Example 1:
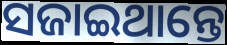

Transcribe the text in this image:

ସଜାଇଥାନ୍ତେ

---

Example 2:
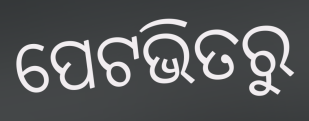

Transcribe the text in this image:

ପେଟଭିତରୁ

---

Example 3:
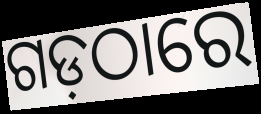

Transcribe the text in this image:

ଗଡ଼ଠାରେ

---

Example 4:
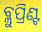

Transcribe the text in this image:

ବ୍ଲୁପ୍ରିଣ୍ଟ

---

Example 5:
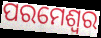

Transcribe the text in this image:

ପରମେଶ୍ୱର